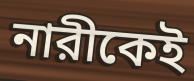
নারীকেই